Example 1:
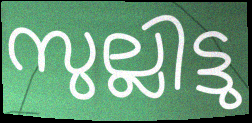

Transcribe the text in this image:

സുല്ലിട്ടു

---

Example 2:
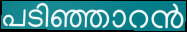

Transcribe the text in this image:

പടിഞ്ഞാറൻ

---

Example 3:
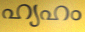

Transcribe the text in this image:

ഹ്യഹം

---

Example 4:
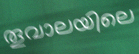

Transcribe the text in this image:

തൂവാലയിലെ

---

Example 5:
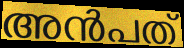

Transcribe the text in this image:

അൻപത്